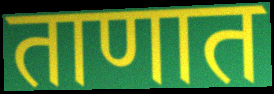
ताणात